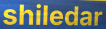
shiledar